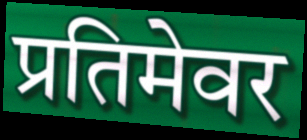
प्रतिमेवर